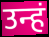
उन्हं